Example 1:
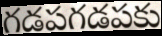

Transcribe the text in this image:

గడపగడపకు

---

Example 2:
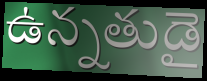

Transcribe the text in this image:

ఉన్నతుడై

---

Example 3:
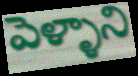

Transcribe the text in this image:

పెళ్ళాని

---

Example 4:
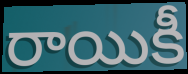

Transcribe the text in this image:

రాయికీ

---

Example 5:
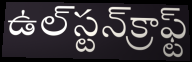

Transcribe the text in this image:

ఉల్‌స్టన్‌క్రాఫ్ట్